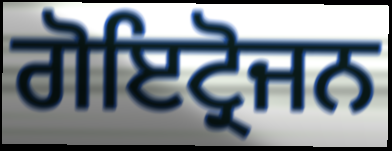
ਗੋਇਟ੍ਰੋਜਨ